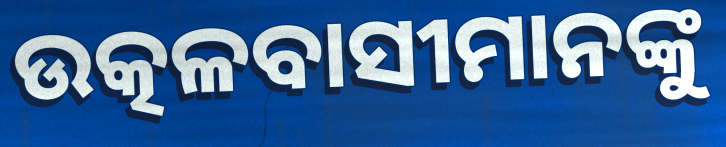
ଉତ୍କଳବାସୀମାନଙ୍କୁ